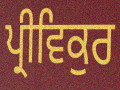
ਪ੍ਰੀਵਿਕੁਰ